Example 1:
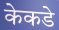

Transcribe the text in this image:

केकडे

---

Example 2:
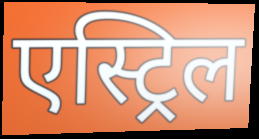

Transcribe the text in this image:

एस्ट्रिल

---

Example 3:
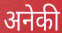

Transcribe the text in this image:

अनेकी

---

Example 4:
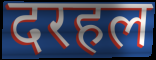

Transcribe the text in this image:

दरहल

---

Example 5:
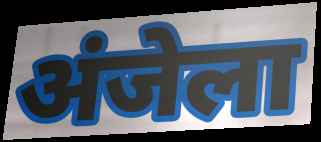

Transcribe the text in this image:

अंजेला